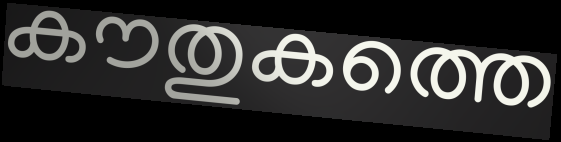
കൗതുകത്തെ